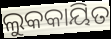
ଲୁକକାୟିତ